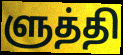
ளுத்தி